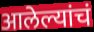
आलेल्यांचं